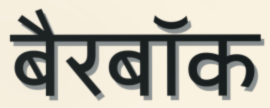
बैरबॉक